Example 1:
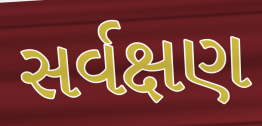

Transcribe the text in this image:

સર્વક્ષણ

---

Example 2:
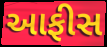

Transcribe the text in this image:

આફીસ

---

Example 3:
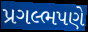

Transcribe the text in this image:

પ્રગલ્ભપણે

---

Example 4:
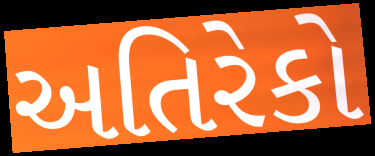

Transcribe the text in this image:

અતિરેકો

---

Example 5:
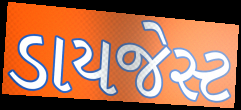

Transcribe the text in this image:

ડાયજેસ્ટ